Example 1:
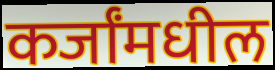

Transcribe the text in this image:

कर्जांमधील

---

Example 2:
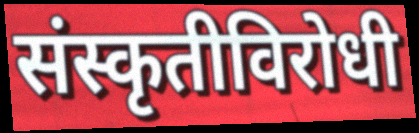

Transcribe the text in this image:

संस्कृतीविरोधी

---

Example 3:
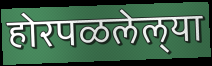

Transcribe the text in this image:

होरपळलेल्या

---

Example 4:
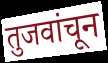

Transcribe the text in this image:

तुजवांचून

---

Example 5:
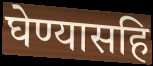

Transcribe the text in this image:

घेण्यासहि